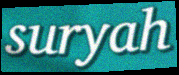
suryah